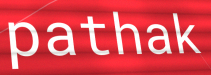
pathak